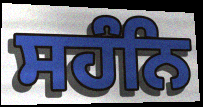
ਸਹੰਨਿ